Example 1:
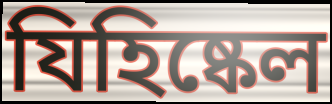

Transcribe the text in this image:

যিহিষ্কেল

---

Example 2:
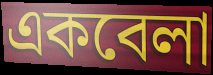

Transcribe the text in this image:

একবেলা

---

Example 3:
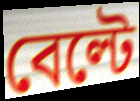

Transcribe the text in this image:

বেল্টে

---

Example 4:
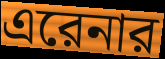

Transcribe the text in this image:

এরেনার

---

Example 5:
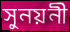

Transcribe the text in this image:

সুনয়নী